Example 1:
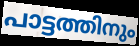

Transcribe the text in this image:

പാട്ടത്തിനും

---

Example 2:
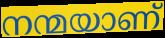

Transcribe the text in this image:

നന്മയാണ്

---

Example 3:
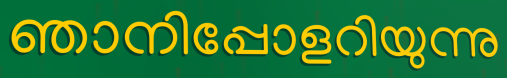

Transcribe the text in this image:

ഞാനിപ്പോളറിയുന്നു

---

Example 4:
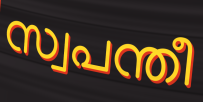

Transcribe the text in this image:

സ്വപന്തീ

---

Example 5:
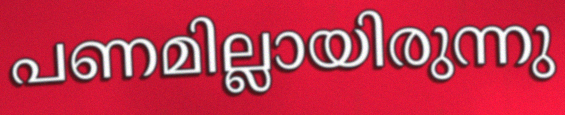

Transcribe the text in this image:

പണമില്ലായിരുന്നു